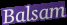
Balsam